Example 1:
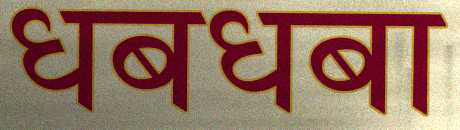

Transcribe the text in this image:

धबधबा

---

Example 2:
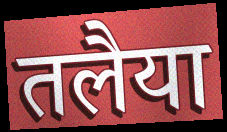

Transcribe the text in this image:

तलैया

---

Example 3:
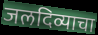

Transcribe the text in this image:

जलदिव्याचा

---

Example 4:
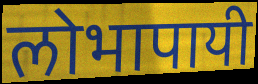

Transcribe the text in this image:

लोभापायी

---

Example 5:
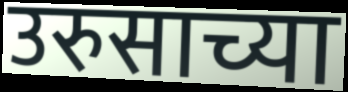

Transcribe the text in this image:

उरुसाच्या